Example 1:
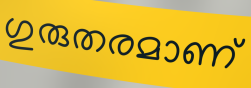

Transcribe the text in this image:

ഗുരുതരമാണ്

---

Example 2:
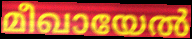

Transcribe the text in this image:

മീഖായേൽ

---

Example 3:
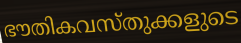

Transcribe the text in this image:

ഭൗതികവസ്തുക്കളുടെ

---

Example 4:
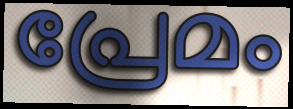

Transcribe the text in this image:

പ്രേമം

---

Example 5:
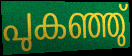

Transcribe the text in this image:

പുകഞ്ഞു്